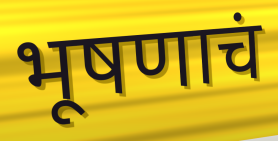
भूषणाचं